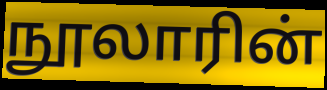
நூலாரின்